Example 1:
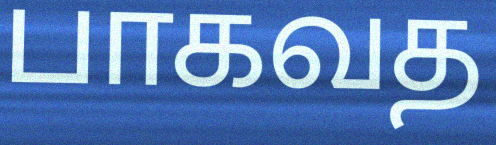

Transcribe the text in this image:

பாகவத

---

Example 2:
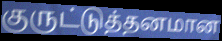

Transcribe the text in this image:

குருட்டுத்தனமான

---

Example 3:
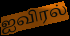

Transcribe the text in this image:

ஐவிரல்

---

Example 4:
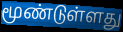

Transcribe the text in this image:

மூண்டுள்ளது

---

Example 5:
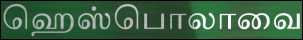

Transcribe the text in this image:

ஹெஸ்பொலாவை